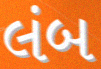
લંબ